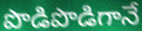
పొడిపొడిగానే